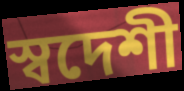
স্বদেশী